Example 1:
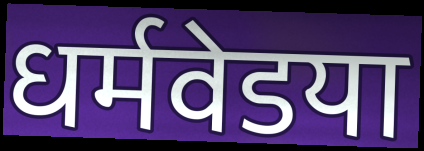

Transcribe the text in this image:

धर्मवेडया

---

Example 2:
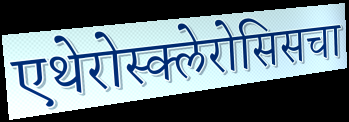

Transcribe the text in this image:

एथेरोस्क्लेरोसिसचा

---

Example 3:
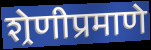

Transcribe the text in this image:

श्रेणीप्रमाणे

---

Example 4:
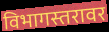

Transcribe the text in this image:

विभागस्तरावर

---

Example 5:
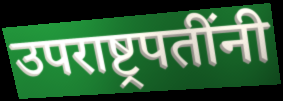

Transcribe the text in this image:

उपराष्ट्रपतींनी